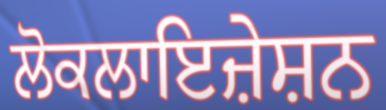
ਲੋਕਲਾਇਜ਼ੇਸ਼ਨ